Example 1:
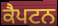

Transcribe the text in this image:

ਕੈਪਟਨ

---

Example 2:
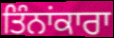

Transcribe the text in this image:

ਤਿੰਨਾਂਕਾਰਾ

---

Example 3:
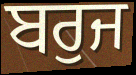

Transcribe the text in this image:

ਬਰੁਜ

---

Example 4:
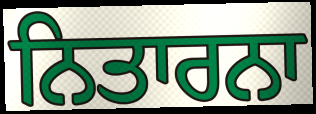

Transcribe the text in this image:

ਨਿਤਾਰਨਾ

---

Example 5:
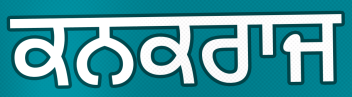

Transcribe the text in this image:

ਕਨਕਰਾਜ